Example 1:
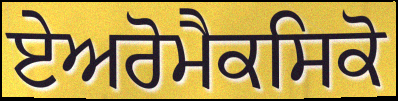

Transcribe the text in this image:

ਏਅਰੋਮੈਕਸਿਕੋ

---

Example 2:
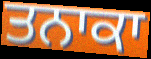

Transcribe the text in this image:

ਤਨਾਕਾ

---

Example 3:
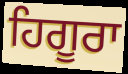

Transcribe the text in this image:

ਹਿਗੂਰਾ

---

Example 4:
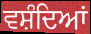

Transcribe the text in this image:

ਵਸ਼ੰਦਿਆਂ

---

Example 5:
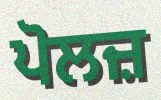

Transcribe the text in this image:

ਪੋਲਜ਼